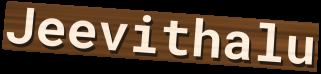
Jeevithalu